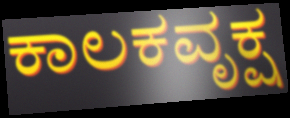
ಕಾಲಕವೃಕ್ಷ